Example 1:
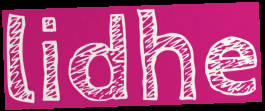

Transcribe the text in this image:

lidhe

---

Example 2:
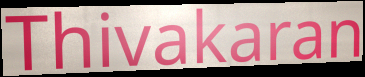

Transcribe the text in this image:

Thivakaran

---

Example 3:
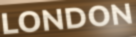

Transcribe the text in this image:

LONDON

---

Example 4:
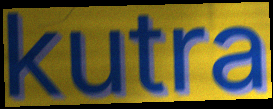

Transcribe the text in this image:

kutra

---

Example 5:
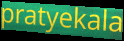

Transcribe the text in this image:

pratyekala